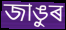
জাঙুৰ